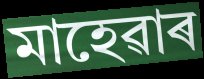
মাহেৱাৰ